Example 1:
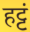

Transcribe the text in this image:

हट्टं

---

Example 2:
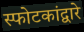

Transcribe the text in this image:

स्फोटकांद्वारे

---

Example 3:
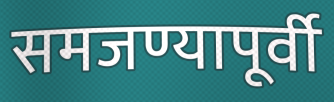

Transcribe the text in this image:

समजण्यापूर्वी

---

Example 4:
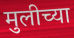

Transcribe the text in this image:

मुलीच्‍या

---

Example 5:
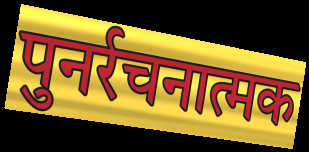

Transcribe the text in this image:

पुनर्रचनात्मक